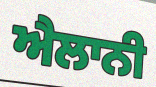
ਐਲਾਨੀ